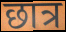
छात्र